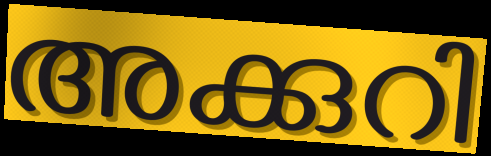
അക്കുറി